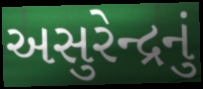
અસુરેન્દ્રનું